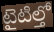
టైటిల్తో